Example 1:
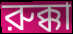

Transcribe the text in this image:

রুক্কা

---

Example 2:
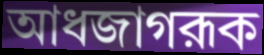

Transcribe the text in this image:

আধজাগরূক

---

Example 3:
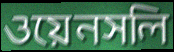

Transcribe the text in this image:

ওয়েনসলি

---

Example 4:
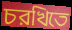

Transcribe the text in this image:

চরখিতে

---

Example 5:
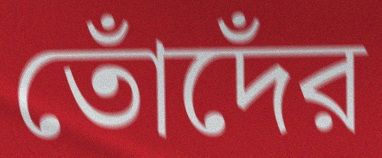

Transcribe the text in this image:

তোঁদেঁর